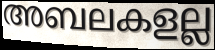
അബലകളല്ല